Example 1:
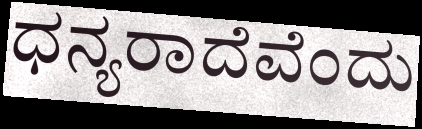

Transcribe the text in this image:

ಧನ್ಯರಾದೆವೆಂದು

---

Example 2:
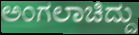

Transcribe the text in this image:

ಅಂಗಲಾಚಿದ್ದು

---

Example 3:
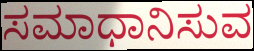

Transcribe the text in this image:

ಸಮಾಧಾನಿಸುವ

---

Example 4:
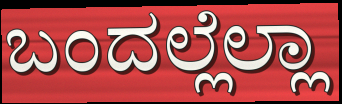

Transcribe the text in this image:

ಬಂದಲ್ಲೆಲ್ಲಾ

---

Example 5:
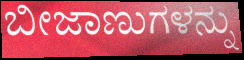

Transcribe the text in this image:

ಬೀಜಾಣುಗಳನ್ನು